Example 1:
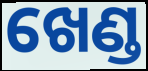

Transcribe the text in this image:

ଖେଣ୍ଡ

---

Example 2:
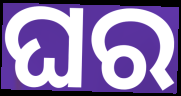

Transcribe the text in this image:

ଘର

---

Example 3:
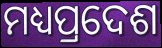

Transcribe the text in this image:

ମଧ୍ୟପ୍ରଦେଶ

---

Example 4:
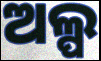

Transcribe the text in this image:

ଅଲ୍ପ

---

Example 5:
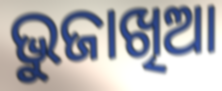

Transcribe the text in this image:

ଭୁଜାଖିଆ